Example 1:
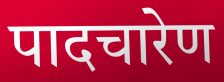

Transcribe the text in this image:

पादचारेण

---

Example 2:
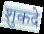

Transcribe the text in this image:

शुकदे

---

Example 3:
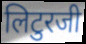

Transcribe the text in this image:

लिटुरजी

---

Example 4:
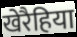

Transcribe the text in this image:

खेरैहिया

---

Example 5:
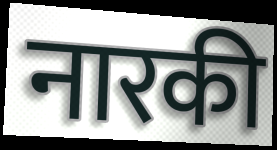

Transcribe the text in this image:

नारकी